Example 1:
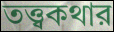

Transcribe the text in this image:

তত্ত্বকথার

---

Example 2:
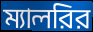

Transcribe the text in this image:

ম্যালরির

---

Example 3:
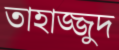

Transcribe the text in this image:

তাহাজ্জুদ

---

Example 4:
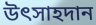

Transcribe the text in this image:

উৎসাহদান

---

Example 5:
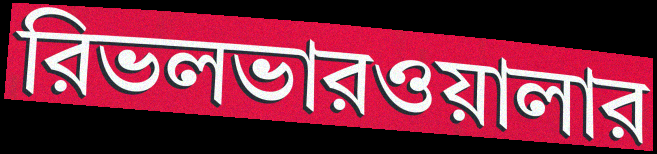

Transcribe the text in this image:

রিভলভারওয়ালার